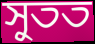
সুতত